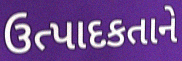
ઉત્પાદકતાને